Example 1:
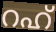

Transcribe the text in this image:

റഹ്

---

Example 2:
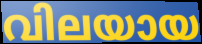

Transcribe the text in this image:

വിലയായ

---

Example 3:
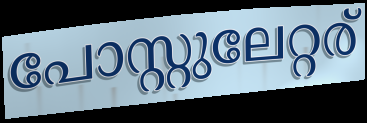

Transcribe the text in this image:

പോസ്റ്റുലേറ്റര്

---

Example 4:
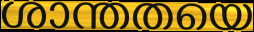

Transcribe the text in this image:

ശാന്തതയെ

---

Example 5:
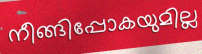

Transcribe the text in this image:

നീങ്ങിപ്പോകയുമില്ല